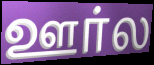
ஊர்ல